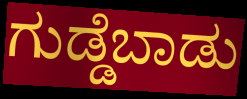
ಗುಡ್ಡೆಬಾಡು